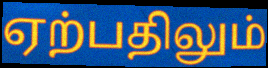
ஏற்பதிலும்